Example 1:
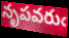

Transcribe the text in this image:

నృపవరుఁ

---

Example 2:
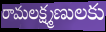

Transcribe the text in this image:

రామలక్ష్మణులకు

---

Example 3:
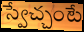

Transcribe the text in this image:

స్వేచ్చంటే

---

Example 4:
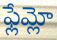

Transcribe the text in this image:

ఫ్లేమ్లో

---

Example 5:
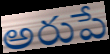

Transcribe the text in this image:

అరుపే